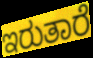
ಇರುತಾರೆ